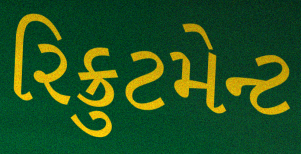
રિક્રુટમેન્ટ